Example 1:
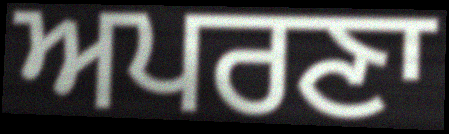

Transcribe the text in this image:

ਅਪਰਣਾ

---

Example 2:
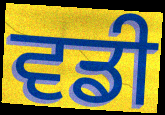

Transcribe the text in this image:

ਵਡੀ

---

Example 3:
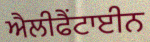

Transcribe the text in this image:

ਐਲੀਫੈਂਟਾਈਨ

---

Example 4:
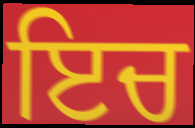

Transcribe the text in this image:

ਇਚ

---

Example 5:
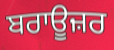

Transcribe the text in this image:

ਬਰਾਊਜ਼ਰ